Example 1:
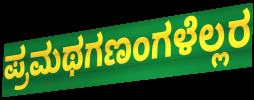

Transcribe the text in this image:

ಪ್ರಮಥಗಣಂಗಳೆಲ್ಲರ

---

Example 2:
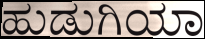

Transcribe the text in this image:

ಹುಡುಗಿಯಾ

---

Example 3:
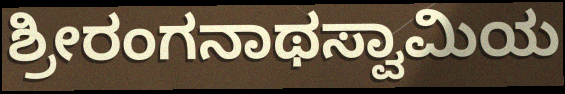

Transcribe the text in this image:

ಶ್ರೀರಂಗನಾಥಸ್ವಾಮಿಯ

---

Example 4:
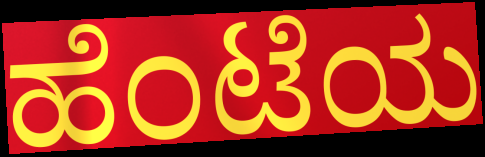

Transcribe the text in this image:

ಹೆಂಟೆಯ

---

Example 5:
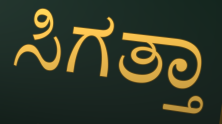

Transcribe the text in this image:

ಸಿಗತ್ತಾ